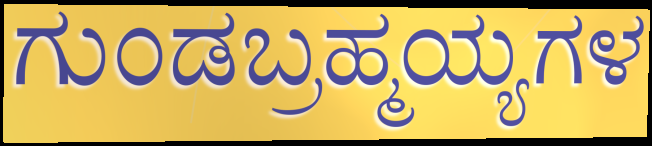
ಗುಂಡಬ್ರಹ್ಮಯ್ಯಗಳ